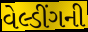
વેલ્ડીંગની